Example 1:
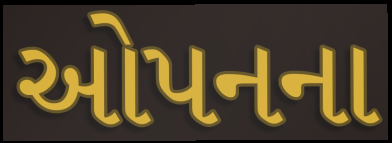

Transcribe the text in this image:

ઓપનના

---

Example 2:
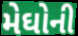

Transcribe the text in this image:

મેઘોની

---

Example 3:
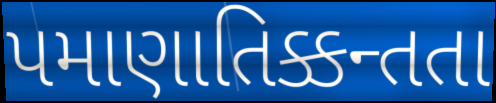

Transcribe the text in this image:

પમાણાતિક્કન્તતા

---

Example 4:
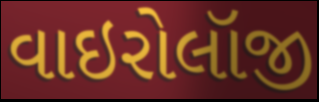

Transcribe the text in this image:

વાઇરોલૉજી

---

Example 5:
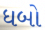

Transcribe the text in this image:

ધબો